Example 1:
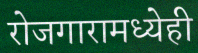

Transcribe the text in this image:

रोजगारामध्येही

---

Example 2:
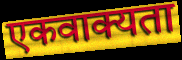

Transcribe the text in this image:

एकवाक्यता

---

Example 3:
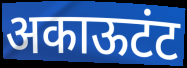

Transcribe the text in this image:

अकाऊटंट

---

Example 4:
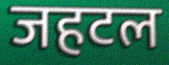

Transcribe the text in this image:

जहटल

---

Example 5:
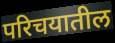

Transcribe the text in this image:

परिचयातील